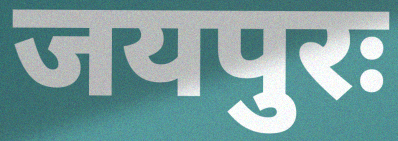
जयपुरः